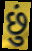
છું